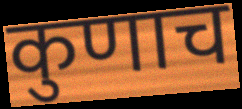
कुणाच